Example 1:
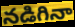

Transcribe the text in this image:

నడిగినా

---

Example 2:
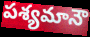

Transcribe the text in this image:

పశ్యమానౌ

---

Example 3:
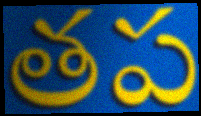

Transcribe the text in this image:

తప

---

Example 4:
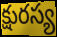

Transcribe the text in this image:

క్షురస్య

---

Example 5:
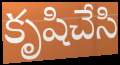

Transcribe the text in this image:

కృషిచేసి